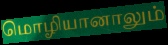
மொழியானாலும்